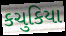
કચુકિયા